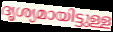
ദൃശ്യമായിട്ടുള്ള